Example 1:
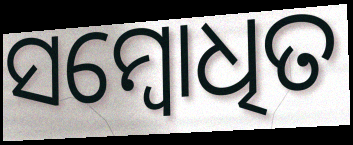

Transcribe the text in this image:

ସମ୍ବୋଧିତ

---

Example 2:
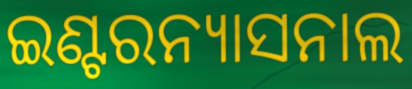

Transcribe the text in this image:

ଇଣ୍ଟରନ୍ୟାସନାଲ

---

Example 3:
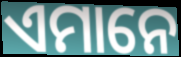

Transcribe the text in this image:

ଏମାନେ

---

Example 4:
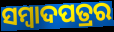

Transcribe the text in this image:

ସମ୍ବାଦପତ୍ରର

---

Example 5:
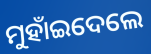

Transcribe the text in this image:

ମୁହାଁଇଦେଲେ